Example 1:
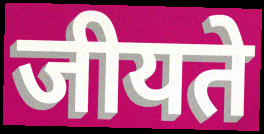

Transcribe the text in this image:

जीयते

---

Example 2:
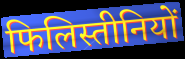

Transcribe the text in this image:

फिलिस्तीनियों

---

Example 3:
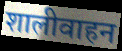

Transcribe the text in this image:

शालीवाहन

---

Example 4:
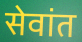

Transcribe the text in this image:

सेवांत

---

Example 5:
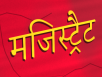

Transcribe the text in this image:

मजिस्ट्रैट